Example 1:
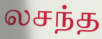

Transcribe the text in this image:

லசந்த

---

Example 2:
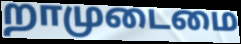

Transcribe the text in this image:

றாமுடைமை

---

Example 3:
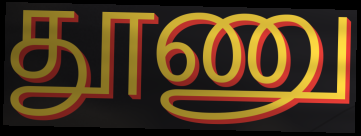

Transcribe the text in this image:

தூணு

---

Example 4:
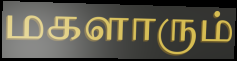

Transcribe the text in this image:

மகளாரும்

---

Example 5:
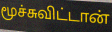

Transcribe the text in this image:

மூச்சுவிட்டான்